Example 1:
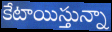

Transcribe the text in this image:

కేటాయిస్తున్నా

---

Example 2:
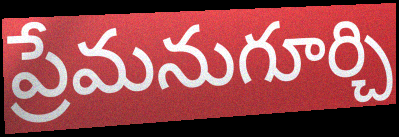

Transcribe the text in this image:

ప్రేమనుగూర్చి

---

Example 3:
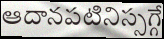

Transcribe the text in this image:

ఆదానపటినిస్సగ్గే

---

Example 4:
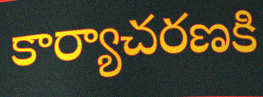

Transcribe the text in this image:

కార్యాచరణకి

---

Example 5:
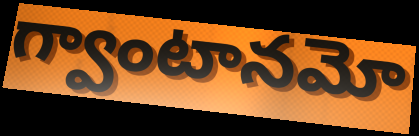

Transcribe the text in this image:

గ్వాంటానమో